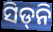
ସିଡ୍‍ନି